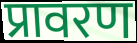
प्रावरण